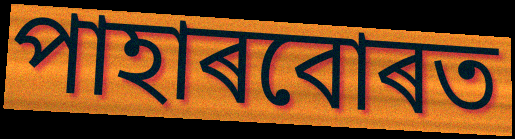
পাহাৰবোৰত